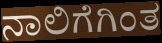
ನಾಲಿಗೆಗಿಂತ